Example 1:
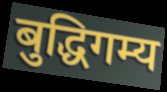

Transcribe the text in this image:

बुद्धिगम्य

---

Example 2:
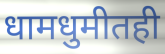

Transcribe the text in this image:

धामधुमीतही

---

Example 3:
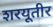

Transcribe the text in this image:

शरयूतीर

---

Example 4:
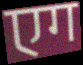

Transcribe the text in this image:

एग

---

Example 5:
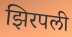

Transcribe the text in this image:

झिरपली